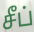
சீப்